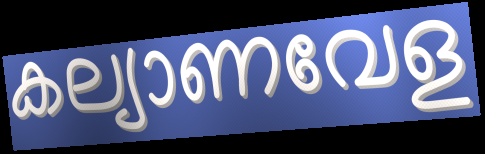
കല്യാണവേള